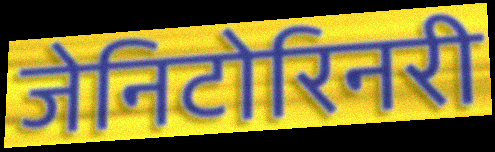
जेनिटोरिनरी